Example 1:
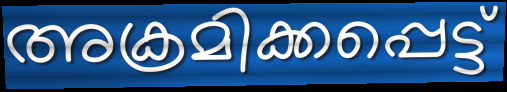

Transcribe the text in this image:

അക്രമിക്കപ്പെട്ട്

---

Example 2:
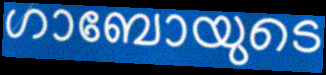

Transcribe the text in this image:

ഗാബോയുടെ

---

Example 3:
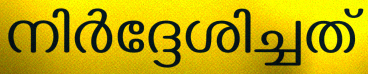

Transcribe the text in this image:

നിർദ്ദേശിച്ചത്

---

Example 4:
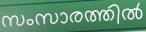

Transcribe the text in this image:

സംസാരത്തിൽ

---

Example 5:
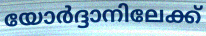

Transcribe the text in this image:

യോർദ്ദാനിലേക്ക്